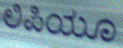
ಲಿಪಿಯೂ